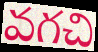
వగచి